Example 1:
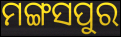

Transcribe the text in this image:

ମଙ୍ଗସପୁର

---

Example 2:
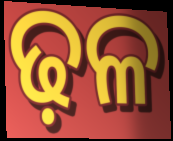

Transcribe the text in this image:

ଢ଼ଳ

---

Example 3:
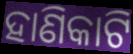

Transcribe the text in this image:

ହାଣିକାଟି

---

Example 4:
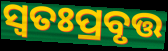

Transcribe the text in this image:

ସ୍ବତଃପ୍ରବୃତ୍ତ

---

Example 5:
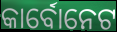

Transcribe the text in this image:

କାର୍ବୋନେଟ